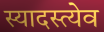
स्यादस्त्येव